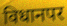
विधानपर